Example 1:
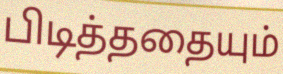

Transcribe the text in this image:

பிடித்ததையும்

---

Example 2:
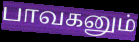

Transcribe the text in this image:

பாவகனும்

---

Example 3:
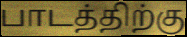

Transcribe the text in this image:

பாடத்திற்கு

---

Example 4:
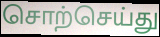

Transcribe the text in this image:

சொற்செய்து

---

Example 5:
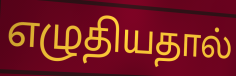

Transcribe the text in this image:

எழுதியதால்